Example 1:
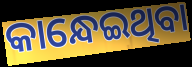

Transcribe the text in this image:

କାନ୍ଧେଇଥିବା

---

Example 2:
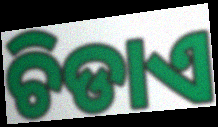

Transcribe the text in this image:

ଚିଡାଏ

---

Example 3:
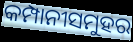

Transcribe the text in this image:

କମ୍ପାନୀସମୁହର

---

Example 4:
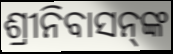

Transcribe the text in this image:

ଶ୍ରୀନିବାସନ୍‌ଙ୍କ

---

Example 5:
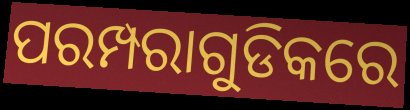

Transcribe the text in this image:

ପରମ୍ପରାଗୁଡିକରେ